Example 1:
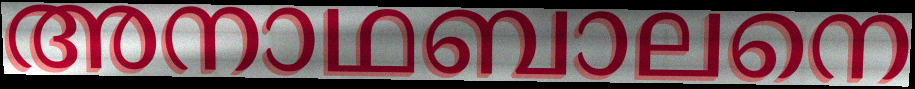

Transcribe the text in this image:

അനാഥബാലനെ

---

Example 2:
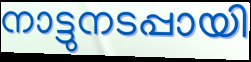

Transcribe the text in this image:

നാട്ടുനടപ്പായി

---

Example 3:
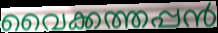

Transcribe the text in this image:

വൈക്കത്തപ്പൻ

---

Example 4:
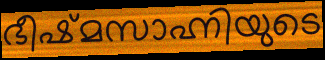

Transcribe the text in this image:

ഭീഷ്മസാഹ്നിയുടെ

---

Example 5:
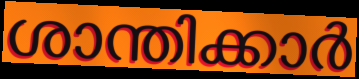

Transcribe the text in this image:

ശാന്തിക്കാർ